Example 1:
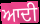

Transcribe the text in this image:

ਆਦੀ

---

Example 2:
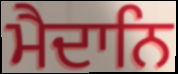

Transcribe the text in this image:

ਮੈਦਾਨਿ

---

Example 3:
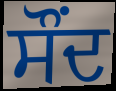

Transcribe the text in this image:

ਸੌਂਦ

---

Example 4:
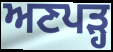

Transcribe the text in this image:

ਅਣਪੜ੍ਹ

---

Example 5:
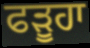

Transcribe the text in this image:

ਫੜੂਹਾ